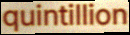
quintillion